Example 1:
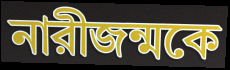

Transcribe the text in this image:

নারীজন্মকে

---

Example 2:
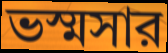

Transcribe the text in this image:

ভস্মসার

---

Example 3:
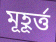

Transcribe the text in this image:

মূহূর্ত্ত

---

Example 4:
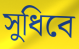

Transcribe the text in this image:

সুধিবে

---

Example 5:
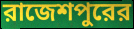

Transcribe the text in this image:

রাজেশপুরের